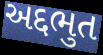
અદ્દભુત